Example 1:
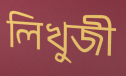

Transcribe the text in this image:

লিখুজী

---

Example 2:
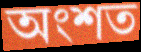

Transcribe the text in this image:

অংশত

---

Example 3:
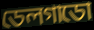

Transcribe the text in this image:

ডেলগাডো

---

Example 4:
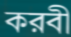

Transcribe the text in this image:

করবী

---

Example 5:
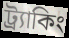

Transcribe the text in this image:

ট্র্যাকিং